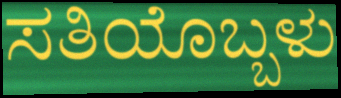
ಸತಿಯೊಬ್ಬಳು